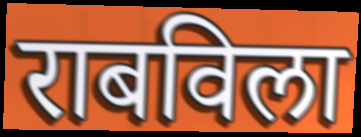
राबविला